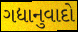
ગદ્યાનુવાદો